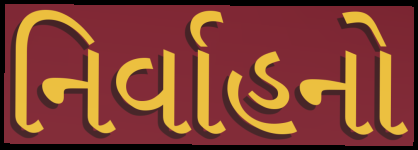
નિર્વાહનો